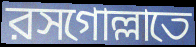
রসগোল্লাতে